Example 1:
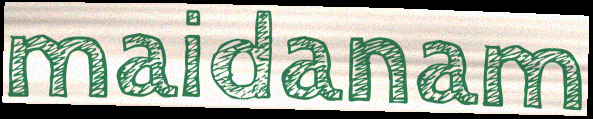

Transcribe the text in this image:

maidanam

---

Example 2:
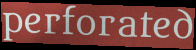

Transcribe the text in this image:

perforated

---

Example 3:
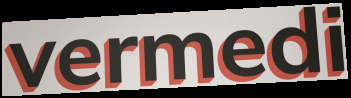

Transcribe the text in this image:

vermedi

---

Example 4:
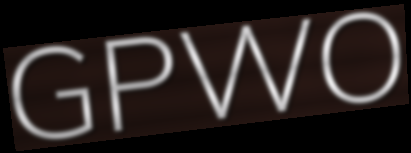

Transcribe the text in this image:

GPWO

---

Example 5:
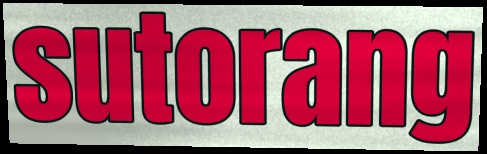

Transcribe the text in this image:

sutorang